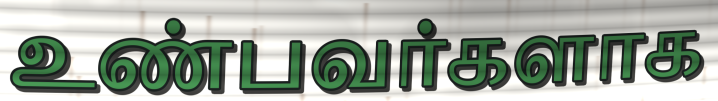
உண்பவர்களாக